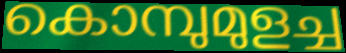
കൊമ്പുമുളച്ച